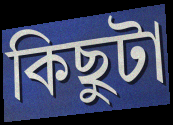
কিছুটা